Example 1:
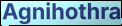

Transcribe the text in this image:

Agnihothra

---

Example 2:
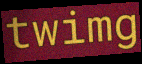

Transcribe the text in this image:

twimg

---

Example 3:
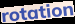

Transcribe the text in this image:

rotation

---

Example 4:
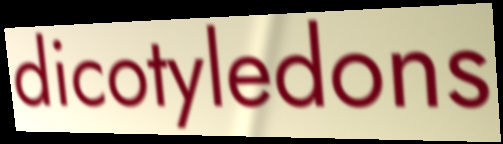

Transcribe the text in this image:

dicotyledons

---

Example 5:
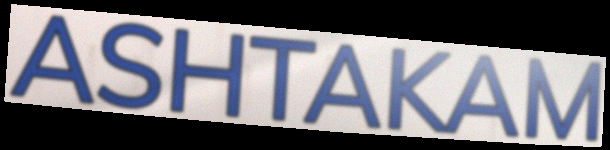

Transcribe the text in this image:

ASHTAKAM